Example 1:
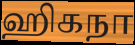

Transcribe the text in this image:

ஹிகநா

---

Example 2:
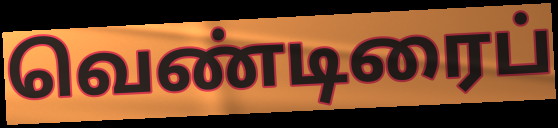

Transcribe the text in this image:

வெண்டிரைப்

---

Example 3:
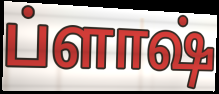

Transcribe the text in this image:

ப்ளாஷ்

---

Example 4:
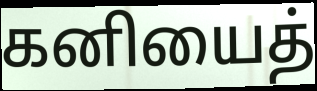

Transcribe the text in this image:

கனியைத்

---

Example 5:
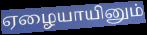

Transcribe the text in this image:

ஏழையாயினும்